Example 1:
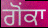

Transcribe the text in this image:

ਗੋਂਕਾ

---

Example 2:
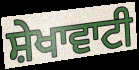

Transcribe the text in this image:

ਸ਼ੇਖਾਵਾਟੀ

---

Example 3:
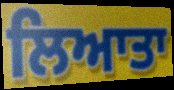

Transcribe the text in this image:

ਲਿਆਤਾ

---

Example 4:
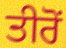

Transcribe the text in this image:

ਤੀਰੋਂ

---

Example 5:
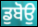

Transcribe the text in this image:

ਡੁਬੋਉ